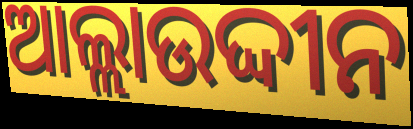
ଆଲ୍ଲାଉଦ୍ଦୀନ